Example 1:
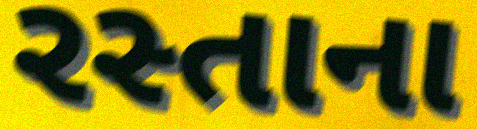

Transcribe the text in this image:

રસ્તાના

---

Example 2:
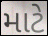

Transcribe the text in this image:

માટે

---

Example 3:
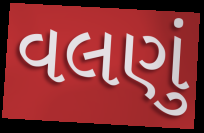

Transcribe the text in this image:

વલણું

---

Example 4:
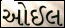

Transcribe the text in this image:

ઓઈલ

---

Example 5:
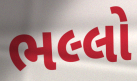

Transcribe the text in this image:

ભલ્લો